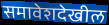
समावेशदेखील